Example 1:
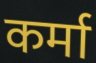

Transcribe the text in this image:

कर्मा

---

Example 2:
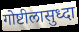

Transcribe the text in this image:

गोष्टीलासुध्दा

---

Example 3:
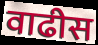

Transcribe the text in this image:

वाढीस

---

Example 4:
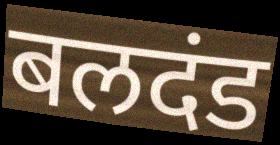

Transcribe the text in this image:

बलदंड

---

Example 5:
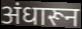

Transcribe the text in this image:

अंधारून